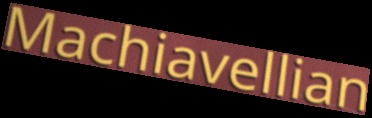
Machiavellian